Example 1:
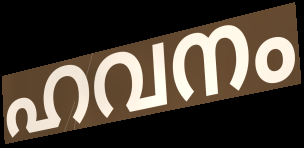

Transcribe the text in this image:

ഹവനം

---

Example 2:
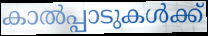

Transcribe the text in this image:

കാൽപ്പാടുകൾക്ക്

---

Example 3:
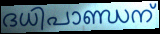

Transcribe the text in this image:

ദധിപാണ്ഡന്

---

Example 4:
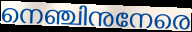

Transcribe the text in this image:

നെഞ്ചിനുനേരെ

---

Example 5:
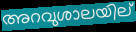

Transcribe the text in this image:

അറവുശാലയില്